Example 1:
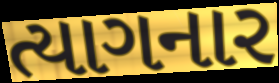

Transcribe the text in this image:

ત્યાગનાર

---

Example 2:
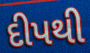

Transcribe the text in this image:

દીપથી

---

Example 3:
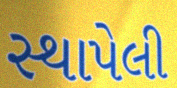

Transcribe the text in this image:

સ્‍થાપેલી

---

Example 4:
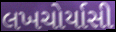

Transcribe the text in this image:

લખચોર્યાસી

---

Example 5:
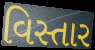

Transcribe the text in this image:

વિસ્તાર